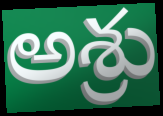
అశ్రు